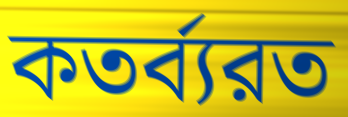
কতর্ব্যরত